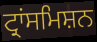
ਟ੍ਰਾਂਸਮਿਸ਼ਨ